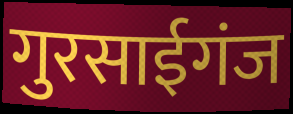
गुरसाईगंज